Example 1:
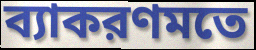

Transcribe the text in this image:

ব্যাকরণমতে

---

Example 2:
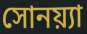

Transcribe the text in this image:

সোনয়্যা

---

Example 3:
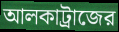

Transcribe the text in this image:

আলকাট্রাজের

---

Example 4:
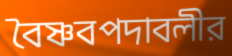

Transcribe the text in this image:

বৈষ্ণবপদাবলীর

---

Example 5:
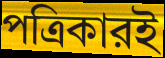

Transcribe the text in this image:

পত্রিকারই